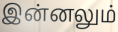
இன்னலும்